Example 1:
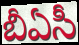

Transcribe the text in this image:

బీఏసీ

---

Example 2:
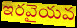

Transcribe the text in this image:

ఇరవైయవ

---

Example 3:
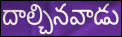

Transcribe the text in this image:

దాల్చినవాడు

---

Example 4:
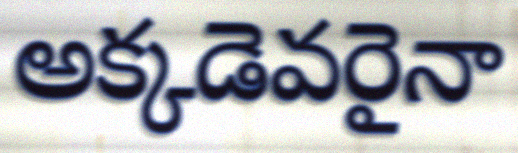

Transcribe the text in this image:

అక్కడెవరైనా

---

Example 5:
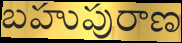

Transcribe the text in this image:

బహుపురాణ